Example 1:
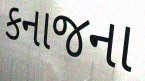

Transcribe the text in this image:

કનાજના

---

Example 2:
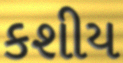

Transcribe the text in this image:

કશીય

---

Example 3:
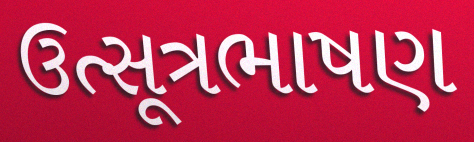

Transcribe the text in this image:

ઉત્સૂત્રભાષણ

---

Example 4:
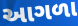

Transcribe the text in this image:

આગળા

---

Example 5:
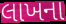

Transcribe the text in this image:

લાખના